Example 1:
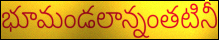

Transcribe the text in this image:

భూమండలాన్నంతటినీ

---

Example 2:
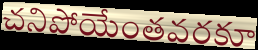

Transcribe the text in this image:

చనిపోయేంతవరకూ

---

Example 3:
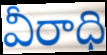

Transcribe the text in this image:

వీరాధి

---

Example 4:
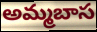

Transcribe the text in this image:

అమ్మబాస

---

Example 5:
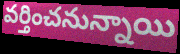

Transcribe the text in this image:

వర్తించనున్నాయి